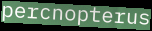
percnopterus